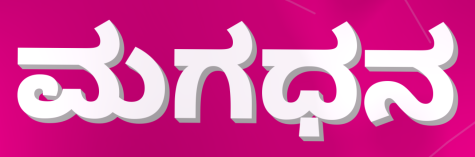
ಮಗಧನ